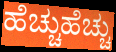
ಹೆಚ್ಚುಹೆಚ್ಚು